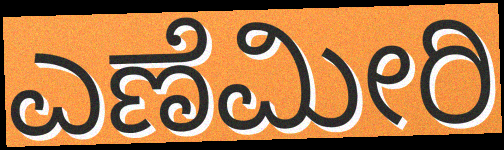
ಎಣೆಮೀರಿ